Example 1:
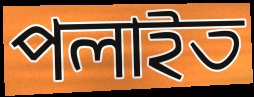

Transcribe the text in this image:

পলাইত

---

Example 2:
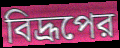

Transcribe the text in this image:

বিদ্রূপের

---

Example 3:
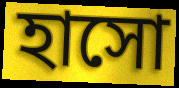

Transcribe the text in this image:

হাসো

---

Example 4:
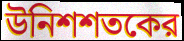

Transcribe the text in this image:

উনিশশতকের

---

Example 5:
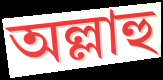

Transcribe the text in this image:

অল্লাহু